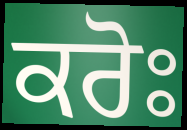
ਕਰੋਃ